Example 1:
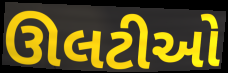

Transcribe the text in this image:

ઊલટીઓ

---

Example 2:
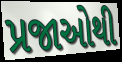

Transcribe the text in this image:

પ્રજાઓથી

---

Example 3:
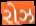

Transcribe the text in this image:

રોઝ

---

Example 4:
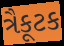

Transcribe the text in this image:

ત્રૈકૂટક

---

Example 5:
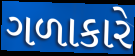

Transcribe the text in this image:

ગળાકારે